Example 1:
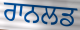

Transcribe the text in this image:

ਰਾਨਲਡ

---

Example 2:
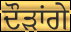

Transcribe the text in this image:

ਦੌੜਾਂਗੇ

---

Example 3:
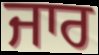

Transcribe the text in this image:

ਜਾਰ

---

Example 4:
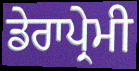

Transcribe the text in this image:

ਡੇਰਾਪ੍ਰੇਮੀ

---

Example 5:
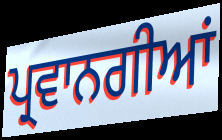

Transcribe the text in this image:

ਪ੍ਰਵਾਨਗੀਆਂ